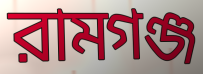
রামগঞ্জ